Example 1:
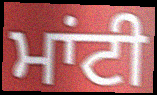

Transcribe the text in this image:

ਮਾਂਟੀ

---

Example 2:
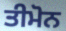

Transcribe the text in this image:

ਤੀਮੋਨ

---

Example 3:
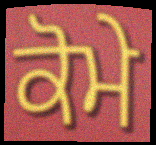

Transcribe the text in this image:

ਕੋਮੇ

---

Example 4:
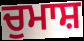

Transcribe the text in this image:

ਚੁਮਾਸ਼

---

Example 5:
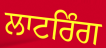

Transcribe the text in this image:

ਲਾਟਰਿੰਗ